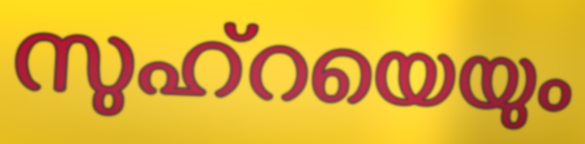
സുഹ്റയെയും